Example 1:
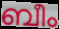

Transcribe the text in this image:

ബീം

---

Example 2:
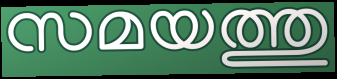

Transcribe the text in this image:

സമയത്തു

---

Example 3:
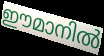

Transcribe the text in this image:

ഈമാനിൽ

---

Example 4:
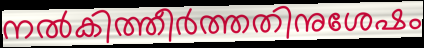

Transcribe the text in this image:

നൽകിത്തീർത്തതിനുശേഷം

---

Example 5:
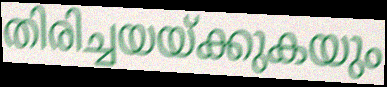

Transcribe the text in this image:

തിരിച്ചയയ്ക്കുകയും